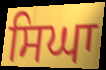
ਸਿਘਾ